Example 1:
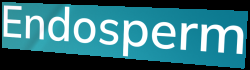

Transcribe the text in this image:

Endosperm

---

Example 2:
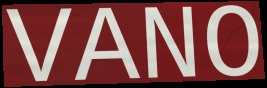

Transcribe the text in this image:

VANO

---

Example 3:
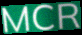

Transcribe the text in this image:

MCR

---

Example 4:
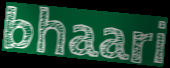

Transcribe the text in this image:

bhaari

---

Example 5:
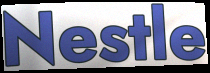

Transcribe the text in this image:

Nestle